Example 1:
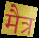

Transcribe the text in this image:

मैत्र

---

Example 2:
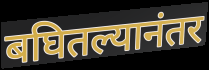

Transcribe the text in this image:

बघितल्यानंतर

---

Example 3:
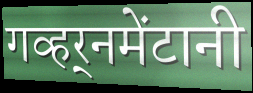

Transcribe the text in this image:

गव्हर्नमेंटानी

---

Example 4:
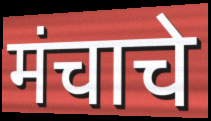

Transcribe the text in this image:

मंचाचे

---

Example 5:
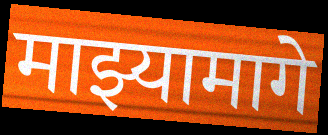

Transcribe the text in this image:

माझ्यामागे